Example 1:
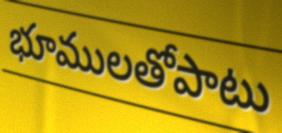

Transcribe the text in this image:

భూములతోపాటు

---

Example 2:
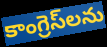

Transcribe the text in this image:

కాంగ్రెస్‌లను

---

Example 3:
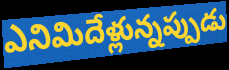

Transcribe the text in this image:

ఎనిమిదేళ్లున్నప్పుడు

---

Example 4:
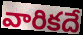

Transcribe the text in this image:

వారికదే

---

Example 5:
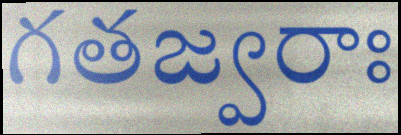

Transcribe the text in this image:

గతజ్వరాః